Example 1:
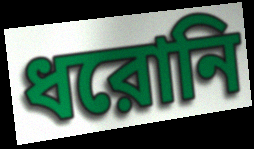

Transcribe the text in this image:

ধরোনি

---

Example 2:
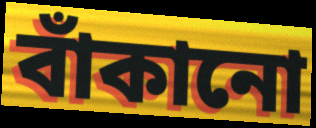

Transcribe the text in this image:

বাঁকানো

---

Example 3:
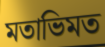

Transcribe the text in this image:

মতাভিমত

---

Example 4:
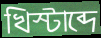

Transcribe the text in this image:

খিস্টাব্দে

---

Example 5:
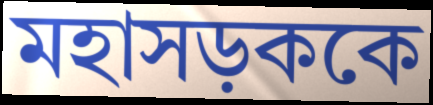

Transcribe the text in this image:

মহাসড়ককে